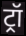
ट्रॉ